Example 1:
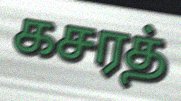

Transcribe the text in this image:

கசரத்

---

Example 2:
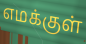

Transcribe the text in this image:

எமக்குள்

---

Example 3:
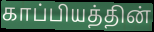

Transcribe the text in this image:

காப்பியத்தின்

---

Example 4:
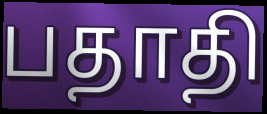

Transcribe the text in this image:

பதாதி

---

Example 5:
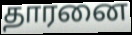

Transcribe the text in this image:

தாரனை